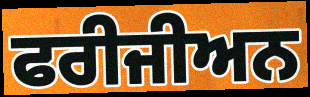
ਫਰੀਜੀਅਨ